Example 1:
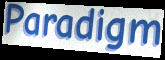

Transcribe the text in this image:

Paradigm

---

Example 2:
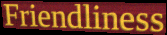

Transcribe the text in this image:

Friendliness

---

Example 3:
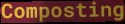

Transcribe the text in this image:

Composting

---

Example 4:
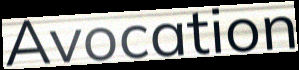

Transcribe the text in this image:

Avocation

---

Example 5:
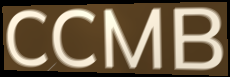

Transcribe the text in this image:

CCMB